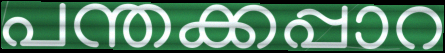
പന്തക്കപ്പാറ